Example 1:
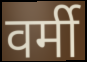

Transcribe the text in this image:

वर्मी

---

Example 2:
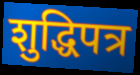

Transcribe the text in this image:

शुद्धिपत्र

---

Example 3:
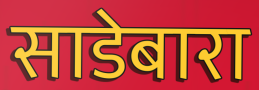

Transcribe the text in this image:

साडेबारा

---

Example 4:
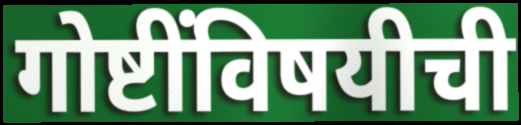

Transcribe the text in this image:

गोष्टींविषयीची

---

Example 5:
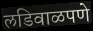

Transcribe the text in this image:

लडिवाळपणे